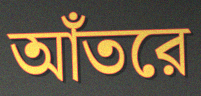
আঁতরে